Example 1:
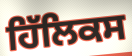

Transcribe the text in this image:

ਹਿੱਲਿਕਸ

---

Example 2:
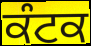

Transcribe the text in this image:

ਕੰਟਕ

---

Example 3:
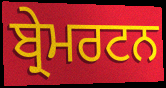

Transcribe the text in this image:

ਬ੍ਰੇਮਰਟਨ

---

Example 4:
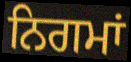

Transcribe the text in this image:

ਨਿਗਮਾਂ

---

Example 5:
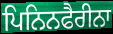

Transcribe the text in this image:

ਪਿਨਿਨਫੈਰੀਨਾ